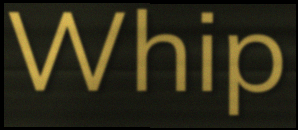
Whip